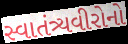
સ્વાતંત્ર્યવીરોનો